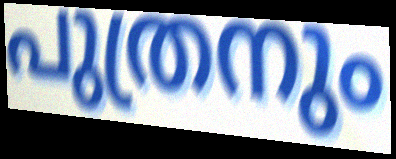
പുത്രനും